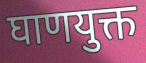
घाणयुक्त